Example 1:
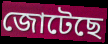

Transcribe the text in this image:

জোটেছে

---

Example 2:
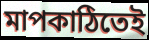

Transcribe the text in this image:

মাপকাঠিতেই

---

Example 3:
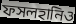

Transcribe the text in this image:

ফসলহানিও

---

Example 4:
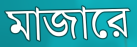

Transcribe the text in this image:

মাজারে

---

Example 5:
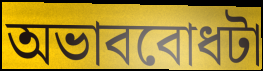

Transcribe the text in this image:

অভাববোধটা